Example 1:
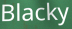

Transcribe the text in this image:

Blacky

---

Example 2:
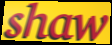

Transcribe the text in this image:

shaw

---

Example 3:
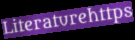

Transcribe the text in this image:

Literaturehttps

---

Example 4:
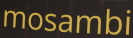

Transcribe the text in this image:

mosambi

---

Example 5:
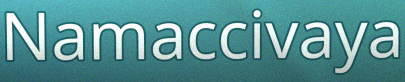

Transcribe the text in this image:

Namaccivaya